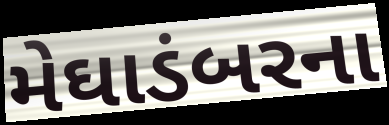
મેઘાડંબરના